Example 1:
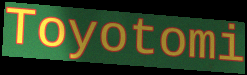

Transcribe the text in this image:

Toyotomi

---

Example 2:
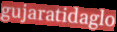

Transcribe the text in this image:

gujaratidaglo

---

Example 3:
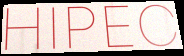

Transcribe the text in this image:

HIPEC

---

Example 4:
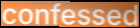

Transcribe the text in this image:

confessed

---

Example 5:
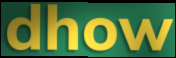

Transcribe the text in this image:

dhow